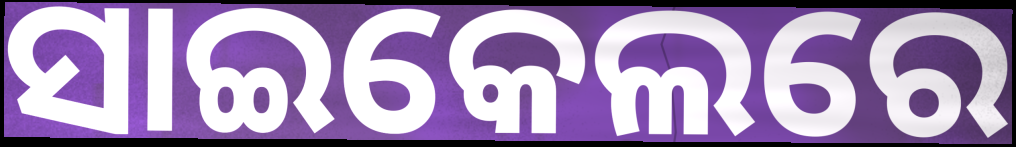
ସାଇକେଲରେ